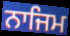
ਨਾਜਿਮ